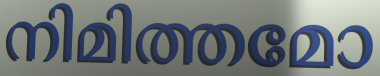
നിമിത്തമോ